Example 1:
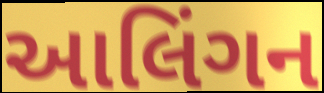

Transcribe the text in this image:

આલિંગન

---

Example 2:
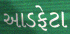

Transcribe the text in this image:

આડફેટા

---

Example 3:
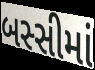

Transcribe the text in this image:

બસ્સીમાં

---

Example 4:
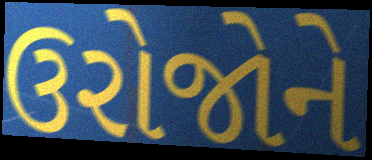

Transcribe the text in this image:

ઉરોજોને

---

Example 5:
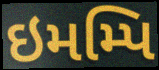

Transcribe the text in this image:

ઇમમ્પિ